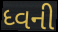
ધ્વની